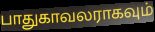
பாதுகாவலராகவும்